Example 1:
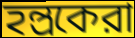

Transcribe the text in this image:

হন্ত্রকেরা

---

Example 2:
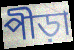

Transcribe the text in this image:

পীড়া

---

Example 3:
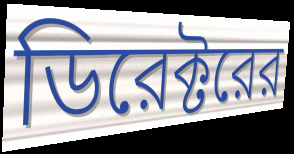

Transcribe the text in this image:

ডিরেক্টরের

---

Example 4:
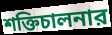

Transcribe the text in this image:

শক্তিচালনার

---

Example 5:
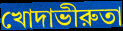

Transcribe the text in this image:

খোদাভীরুতা